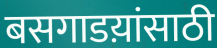
बसगाडय़ांसाठी